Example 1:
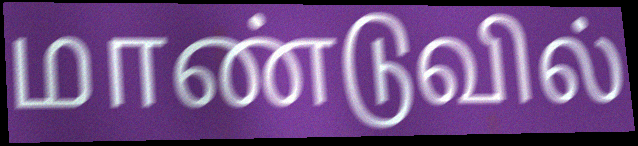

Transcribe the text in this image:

மாண்டுவில்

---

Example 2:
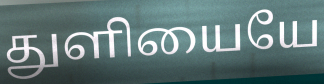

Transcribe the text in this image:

துளியையே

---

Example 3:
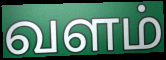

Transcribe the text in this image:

வளம்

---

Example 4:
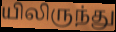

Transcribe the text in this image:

யிலிருந்து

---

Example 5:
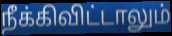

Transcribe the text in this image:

நீக்கிவிட்டாலும்